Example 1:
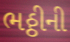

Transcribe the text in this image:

ભઠ્ઠીની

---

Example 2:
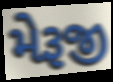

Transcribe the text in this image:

મેરૂજી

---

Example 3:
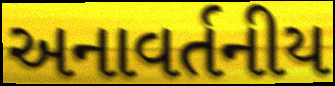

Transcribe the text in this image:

અનાવર્તનીય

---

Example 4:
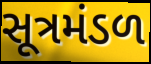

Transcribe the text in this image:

સૂત્રમંડળ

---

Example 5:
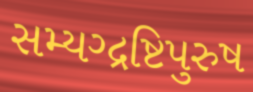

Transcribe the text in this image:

સમ્યગ્દ્રષ્ટિપુરુષ